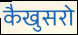
कैखुसरो